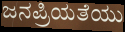
ಜನಪ್ರಿಯತೆಯು